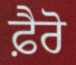
ਫ਼ੈਰੋ